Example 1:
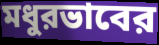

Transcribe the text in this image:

মধুরভাবের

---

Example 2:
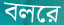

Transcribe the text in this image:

বলরে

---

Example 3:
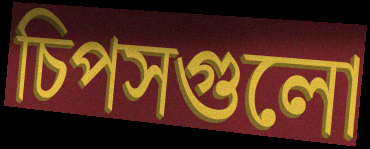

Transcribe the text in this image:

চিপসগুলো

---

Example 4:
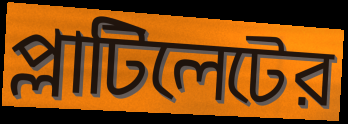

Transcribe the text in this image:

প্লাটিলেটের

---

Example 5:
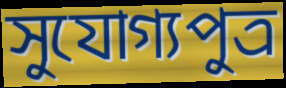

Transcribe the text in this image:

সুযোগ্যপুত্র